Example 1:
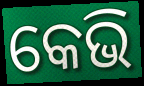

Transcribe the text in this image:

କେଭି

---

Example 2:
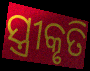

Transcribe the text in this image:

ସ୍ତ୍ରୀକୃତି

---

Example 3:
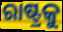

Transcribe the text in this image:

ରାଷ୍ଟ୍ରକୁ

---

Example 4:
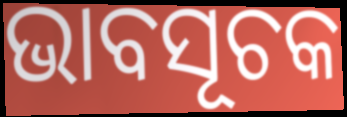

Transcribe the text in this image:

ଭାବସୂଚକ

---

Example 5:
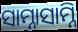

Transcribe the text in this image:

ସାମ୍ନାସାମ୍ନି